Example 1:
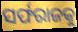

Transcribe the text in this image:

ସର୍ଫରାଜକୁ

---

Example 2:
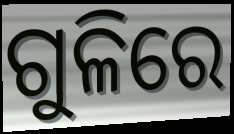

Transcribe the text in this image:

ଗୁଳିରେ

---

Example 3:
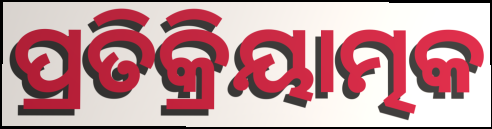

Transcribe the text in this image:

ପ୍ରତିକ୍ରିୟାତ୍ମକ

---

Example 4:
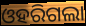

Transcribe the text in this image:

ଓହରିଗଲା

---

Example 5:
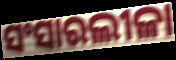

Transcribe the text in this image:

ସଂସାରଲୀଳା